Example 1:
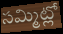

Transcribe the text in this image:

సమ్మిట్లో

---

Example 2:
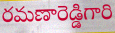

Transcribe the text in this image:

రమణారెడ్డిగారి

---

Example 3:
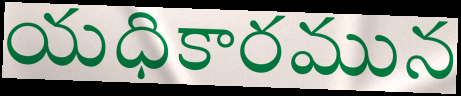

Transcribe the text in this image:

యధికారమున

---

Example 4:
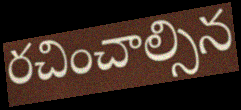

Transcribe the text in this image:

రచించాల్సిన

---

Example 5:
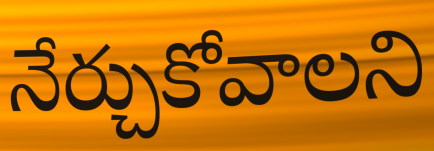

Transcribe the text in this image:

నేర్చుకోవాలని